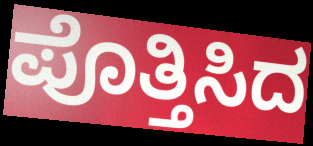
ಪೊತ್ತಿಸಿದ